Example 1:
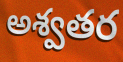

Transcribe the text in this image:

అశ్వతర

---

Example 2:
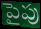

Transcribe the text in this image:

పైపు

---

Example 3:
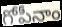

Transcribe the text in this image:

గోపీనాం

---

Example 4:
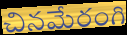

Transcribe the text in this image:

చినమేరంగి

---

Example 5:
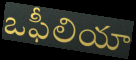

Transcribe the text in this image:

ఒఫీలియా